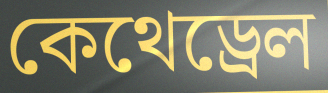
কেথেড্ৰেল